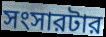
সংসারটার